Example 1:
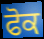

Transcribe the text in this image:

ਫੋਕ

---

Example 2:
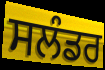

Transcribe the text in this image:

ਸਲੰਡਰ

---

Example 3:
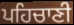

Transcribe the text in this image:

ਪਹਿਚਾਣੀ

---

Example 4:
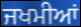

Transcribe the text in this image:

ਜਖਮੀਆਂ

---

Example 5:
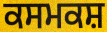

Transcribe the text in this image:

ਕਸਮਕਸ਼